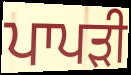
ਪਾਪੜੀ